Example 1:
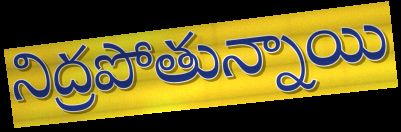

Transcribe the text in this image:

నిద్రపోతున్నాయి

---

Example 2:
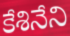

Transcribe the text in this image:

కేశినేని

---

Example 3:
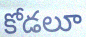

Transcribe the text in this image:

కోడలూ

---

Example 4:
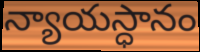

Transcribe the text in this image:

న్యాయస్ధానం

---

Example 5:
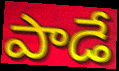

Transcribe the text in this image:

పాడే